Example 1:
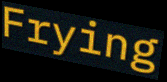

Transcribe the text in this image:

Frying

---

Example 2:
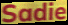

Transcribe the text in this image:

Sadie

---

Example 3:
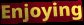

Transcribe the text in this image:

Enjoying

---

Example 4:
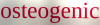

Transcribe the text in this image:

osteogenic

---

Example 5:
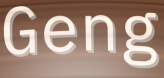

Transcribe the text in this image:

Geng